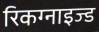
रिकग्नाइज्ड